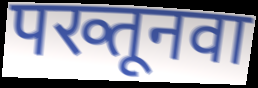
पख्तूनवा